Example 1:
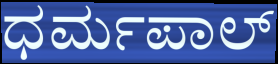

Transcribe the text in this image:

ಧರ್ಮಪಾಲ್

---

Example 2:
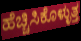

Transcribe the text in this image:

ಹೆಚ್ಚಿಸಿಕೊಳ್ಳುತ್ತ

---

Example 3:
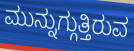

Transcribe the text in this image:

ಮುನ್ನುಗ್ಗುತ್ತಿರುವ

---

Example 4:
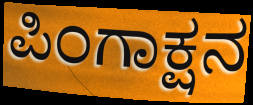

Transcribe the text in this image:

ಪಿಂಗಾಕ್ಷನ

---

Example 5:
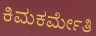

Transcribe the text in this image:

ಕಿಮಕರ್ಮೇತಿ